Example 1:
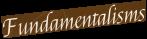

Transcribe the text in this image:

Fundamentalisms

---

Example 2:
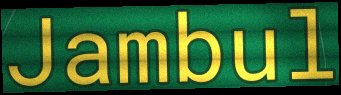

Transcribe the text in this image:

Jambul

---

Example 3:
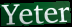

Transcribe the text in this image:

Yeter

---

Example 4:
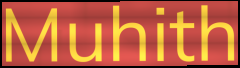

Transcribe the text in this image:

Muhith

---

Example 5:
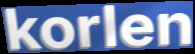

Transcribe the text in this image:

korlen